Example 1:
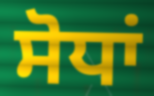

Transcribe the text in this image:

ਸੋਧਾਂ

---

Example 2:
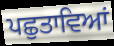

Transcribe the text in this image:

ਪਛੁਤਾਵਿਆਂ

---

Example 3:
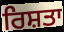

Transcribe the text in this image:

ਰਿਸ਼ਤਾ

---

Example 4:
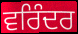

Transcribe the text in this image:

ਵਰਿੰਦਰ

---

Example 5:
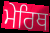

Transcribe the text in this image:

ਮੇਰਿਥ